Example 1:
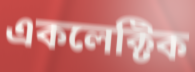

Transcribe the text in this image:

একলেক্টিক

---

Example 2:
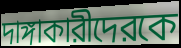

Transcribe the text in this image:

দাঙ্গাকারীদেরকে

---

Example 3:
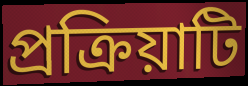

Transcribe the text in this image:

প্রক্রিয়াটি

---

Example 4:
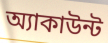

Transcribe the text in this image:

অ্যাকাউন্ট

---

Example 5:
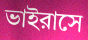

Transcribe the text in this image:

ভাইরাসে